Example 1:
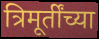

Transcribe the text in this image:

त्रिमूर्तींच्या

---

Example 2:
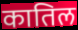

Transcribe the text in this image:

कातिल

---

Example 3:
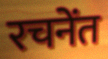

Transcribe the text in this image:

रचनेंत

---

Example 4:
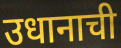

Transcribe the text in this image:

उधानाची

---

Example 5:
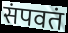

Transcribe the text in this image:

संपवतं